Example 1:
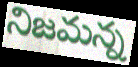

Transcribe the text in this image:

నిజమన్న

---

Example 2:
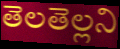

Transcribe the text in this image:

తెలతెల్లని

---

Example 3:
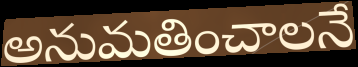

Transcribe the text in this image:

అనుమతించాలనే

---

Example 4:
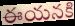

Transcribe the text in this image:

ఈయనకి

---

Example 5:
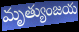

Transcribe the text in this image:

మృత్యుంజయ